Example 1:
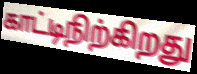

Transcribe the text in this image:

காட்டிநிற்கிறது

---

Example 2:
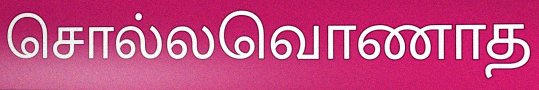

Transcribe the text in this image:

சொல்லவொணாத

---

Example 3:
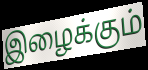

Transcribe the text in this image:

இழைக்கும்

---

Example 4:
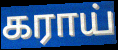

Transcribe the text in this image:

கராய்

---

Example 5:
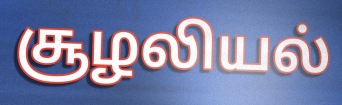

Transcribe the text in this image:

சூழலியல்